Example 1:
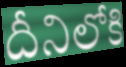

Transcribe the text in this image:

దీనిలోకి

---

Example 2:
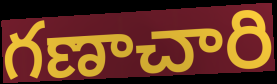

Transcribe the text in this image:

గణాచారి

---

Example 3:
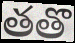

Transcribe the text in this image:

తతొ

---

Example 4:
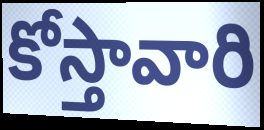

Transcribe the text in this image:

కోస్తావారి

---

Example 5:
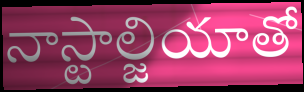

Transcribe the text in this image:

నాస్టాల్జియాతో